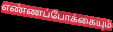
எண்ணப்போக்கையும்